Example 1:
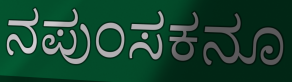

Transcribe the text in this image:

ನಪುಂಸಕನೂ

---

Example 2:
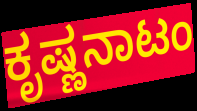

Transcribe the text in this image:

ಕೃಷ್ಣನಾಟಂ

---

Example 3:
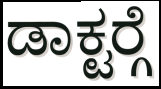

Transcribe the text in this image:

ಡಾಕ್ಟರ್‍ಗೆ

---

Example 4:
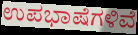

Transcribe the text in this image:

ಉಪಭಾಷೆಗಳಿವೆ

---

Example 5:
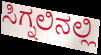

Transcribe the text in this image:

ಸಿಗ್ನಲಿನಲ್ಲಿ